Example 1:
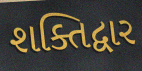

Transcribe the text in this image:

શક્તિદ્વાર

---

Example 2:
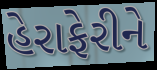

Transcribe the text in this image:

હેરાફેરીને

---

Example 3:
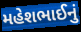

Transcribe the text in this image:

મહેશભાઈનું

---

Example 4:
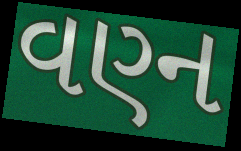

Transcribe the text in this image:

વણ્ન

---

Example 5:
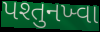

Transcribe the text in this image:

પશ્તુનખ્વા